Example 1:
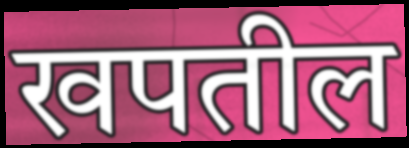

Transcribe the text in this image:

खपतील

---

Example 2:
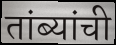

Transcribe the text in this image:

तांब्यांची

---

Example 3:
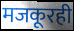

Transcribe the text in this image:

मजकूरही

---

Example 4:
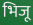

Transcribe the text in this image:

भिजू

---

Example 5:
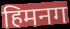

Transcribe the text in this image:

हिमनग